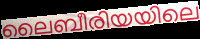
ലൈബീരിയയിലെ